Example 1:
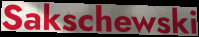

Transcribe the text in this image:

Sakschewski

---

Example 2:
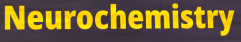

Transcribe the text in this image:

Neurochemistry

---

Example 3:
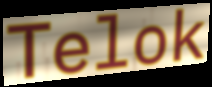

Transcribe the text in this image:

Telok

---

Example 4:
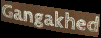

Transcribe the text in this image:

Gangakhed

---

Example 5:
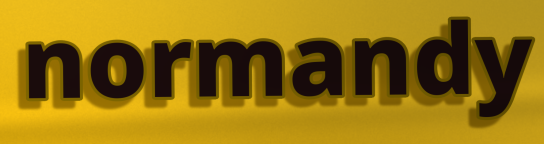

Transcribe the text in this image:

normandy